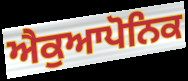
ਐਕੁਆਪੋਨਿਕ